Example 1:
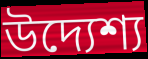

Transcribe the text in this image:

উদ্যেশ্য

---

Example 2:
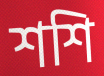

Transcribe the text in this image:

শশি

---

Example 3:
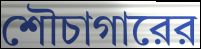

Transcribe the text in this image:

শৌচাগারের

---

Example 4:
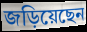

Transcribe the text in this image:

জড়িয়েছেন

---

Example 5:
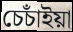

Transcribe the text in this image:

চেচাঁইয়া